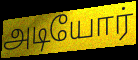
அடியோர்